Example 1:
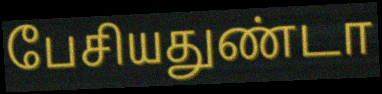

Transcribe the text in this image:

பேசியதுண்டா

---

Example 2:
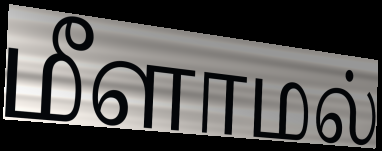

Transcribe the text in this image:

மீளாமல்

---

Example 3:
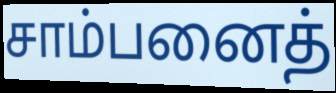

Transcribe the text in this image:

சாம்பனைத்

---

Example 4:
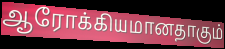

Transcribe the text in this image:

ஆரோக்கியமானதாகும்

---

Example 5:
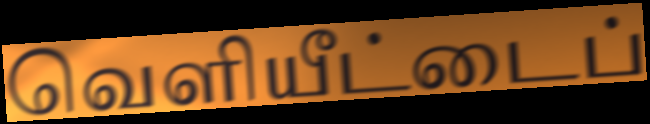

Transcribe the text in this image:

வெளியீட்டைப்